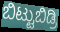
ಬಿಟ್ಟುಬಿಡ್ರಿ